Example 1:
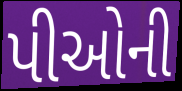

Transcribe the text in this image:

પીઓની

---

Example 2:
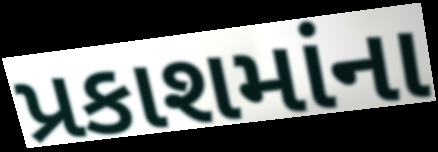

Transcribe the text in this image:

પ્રકાશમાંના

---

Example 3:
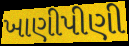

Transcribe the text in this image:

ખાણીપીણી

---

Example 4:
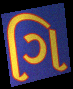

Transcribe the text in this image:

ગિ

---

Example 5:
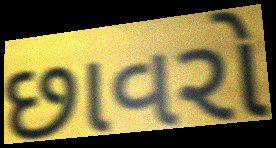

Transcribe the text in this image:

છાવરો